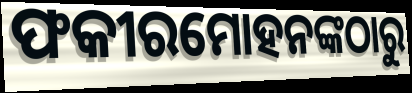
ଫକୀରମୋହନଙ୍କଠାରୁ